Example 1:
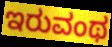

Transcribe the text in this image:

ಇರುವಂಥ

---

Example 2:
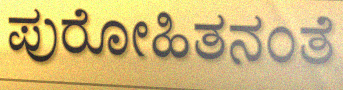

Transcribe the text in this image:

ಪುರೋಹಿತನಂತೆ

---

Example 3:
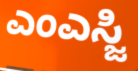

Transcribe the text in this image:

ಎಂಎಸ್ಜಿ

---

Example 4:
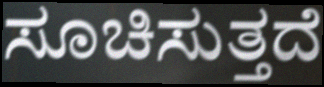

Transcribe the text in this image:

ಸೂಚಿಸುತ್ತದೆ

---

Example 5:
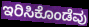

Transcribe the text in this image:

ಇರಿಸಿಕೊಂಡೆವು